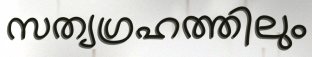
സത്യഗ്രഹത്തിലും